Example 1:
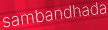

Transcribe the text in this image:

sambandhada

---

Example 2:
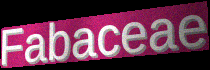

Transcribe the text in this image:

Fabaceae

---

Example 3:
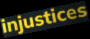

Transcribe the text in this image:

injustices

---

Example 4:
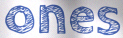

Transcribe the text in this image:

ones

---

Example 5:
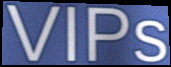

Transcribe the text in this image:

VIPs